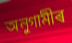
অনুগামীৰ